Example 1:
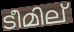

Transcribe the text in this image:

ടീമില്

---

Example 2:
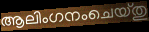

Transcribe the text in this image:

ആലിംഗനംചെയ്തു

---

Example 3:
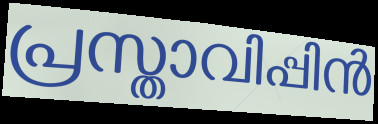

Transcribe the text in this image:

പ്രസ്താവിപ്പിൻ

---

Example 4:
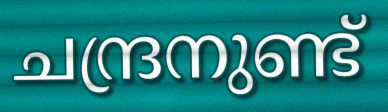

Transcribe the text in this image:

ചന്ദ്രനുണ്ട്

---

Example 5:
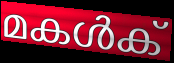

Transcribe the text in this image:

മകൾക്